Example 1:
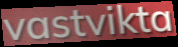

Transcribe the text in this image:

vastvikta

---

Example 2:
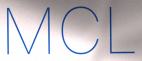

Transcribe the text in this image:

MCL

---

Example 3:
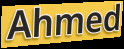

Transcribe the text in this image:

Ahmed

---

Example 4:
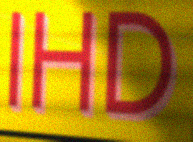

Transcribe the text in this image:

IHD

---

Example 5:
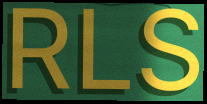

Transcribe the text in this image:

RLS